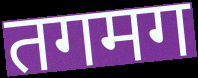
तगमग